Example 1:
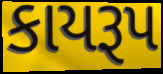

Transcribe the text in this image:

કાયરૂપ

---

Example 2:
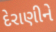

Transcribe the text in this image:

દેરાણીને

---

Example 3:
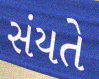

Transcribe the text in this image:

સંયતે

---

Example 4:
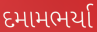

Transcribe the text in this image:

દમામભર્યા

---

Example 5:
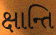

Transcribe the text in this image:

ક્ષાન્તિ